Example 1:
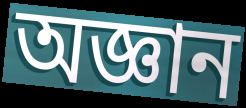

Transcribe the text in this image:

অজ্ঞান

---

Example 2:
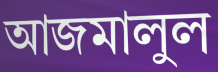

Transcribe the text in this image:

আজমালুল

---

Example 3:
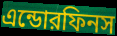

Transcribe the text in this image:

এন্ডোরফিনস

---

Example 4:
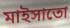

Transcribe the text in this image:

মাইসাতো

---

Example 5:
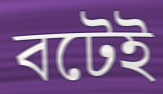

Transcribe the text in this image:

বটেই